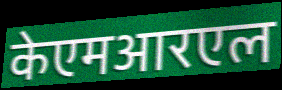
केएमआरएल